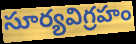
సూర్యవిగ్రహం